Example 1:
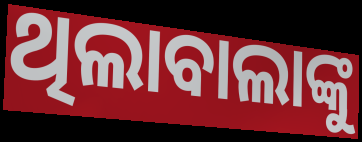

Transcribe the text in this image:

ଥିଲାବାଲାଙ୍କୁ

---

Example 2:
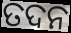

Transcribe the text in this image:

ତଦନ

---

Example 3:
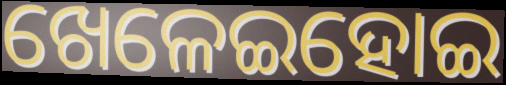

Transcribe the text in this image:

ଖେଳେଇହୋଇ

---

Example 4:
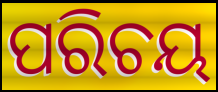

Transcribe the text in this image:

ପରିଚୟ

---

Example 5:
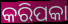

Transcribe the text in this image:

କରିପକା